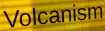
Volcanism